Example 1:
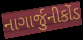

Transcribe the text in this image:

નાગાર્જુનીકોંડ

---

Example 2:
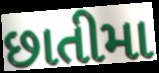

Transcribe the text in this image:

છાતીમા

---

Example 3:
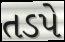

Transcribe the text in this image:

તડપે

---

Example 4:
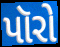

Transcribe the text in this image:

પૉરો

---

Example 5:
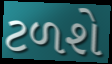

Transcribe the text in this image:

ટળશે